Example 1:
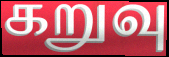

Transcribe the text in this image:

கறுவு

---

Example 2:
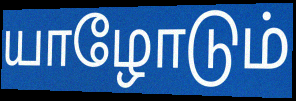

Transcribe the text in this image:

யாழோடும்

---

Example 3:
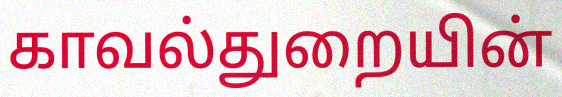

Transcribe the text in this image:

காவல்துறையின்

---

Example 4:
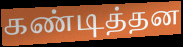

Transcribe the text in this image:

கண்டித்தன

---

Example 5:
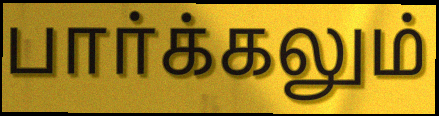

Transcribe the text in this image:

பார்க்கலும்